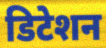
डिटेशन